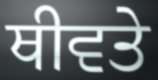
ਥੀਵਤੇ